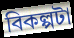
বিকল্পটা